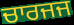
ਚਾਰਜਜ